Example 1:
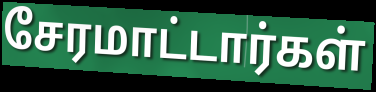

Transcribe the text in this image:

சேரமாட்டார்கள்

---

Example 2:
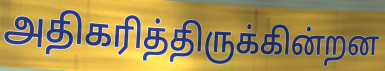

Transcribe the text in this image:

அதிகரித்திருக்கின்றன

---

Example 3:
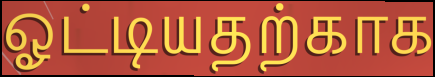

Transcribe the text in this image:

ஓட்டியதற்காக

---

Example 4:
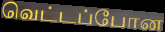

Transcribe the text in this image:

வெட்டப்போன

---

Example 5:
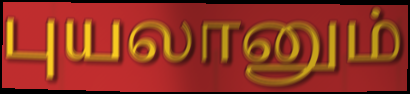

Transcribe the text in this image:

புயலானும்